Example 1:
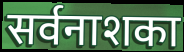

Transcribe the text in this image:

सर्वनाशका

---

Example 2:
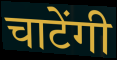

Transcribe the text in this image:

चाटेंगी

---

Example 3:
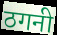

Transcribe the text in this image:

ठगनी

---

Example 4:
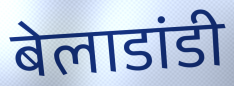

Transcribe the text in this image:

बेलाडांडी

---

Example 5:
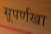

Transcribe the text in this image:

सूपर्णखा